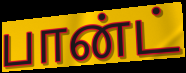
பான்ட்